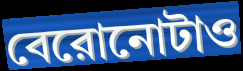
বেরোনোটাও